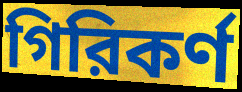
গিরিকর্ণ